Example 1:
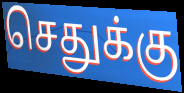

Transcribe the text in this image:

செதுக்கு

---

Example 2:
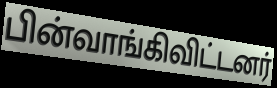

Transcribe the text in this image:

பின்வாங்கிவிட்டனர்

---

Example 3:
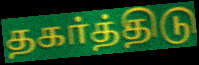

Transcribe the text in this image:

தகர்த்திடு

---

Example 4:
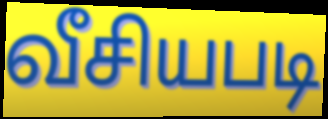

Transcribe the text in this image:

வீசியபடி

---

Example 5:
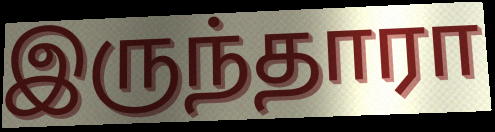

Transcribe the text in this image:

இருந்தாரா